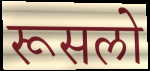
रूसलो